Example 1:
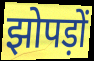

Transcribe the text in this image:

झोपड़ों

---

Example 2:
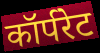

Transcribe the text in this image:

कॉर्परेट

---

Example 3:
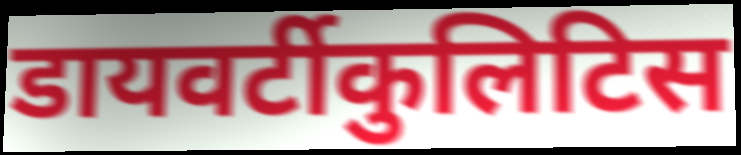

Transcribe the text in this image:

डायवर्टीकुलिटिस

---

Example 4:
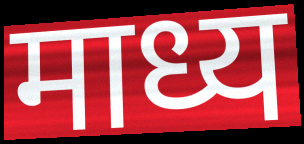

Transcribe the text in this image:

माध्य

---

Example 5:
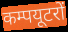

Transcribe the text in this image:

कम्पयूटरों